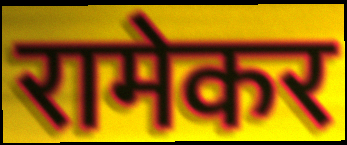
रामेकर